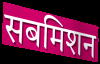
सबमिशन